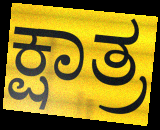
ಕ್ಷಾತ್ರ